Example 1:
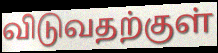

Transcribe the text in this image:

விடுவதற்குள்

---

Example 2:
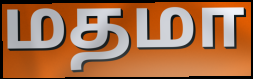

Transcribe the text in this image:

மதமா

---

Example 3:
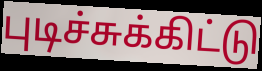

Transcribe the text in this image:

புடிச்சுக்கிட்டு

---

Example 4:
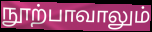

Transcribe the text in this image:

நூற்பாவாலும்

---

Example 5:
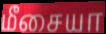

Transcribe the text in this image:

மீசையா